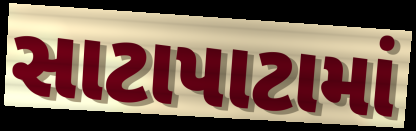
સાટાપાટામાં